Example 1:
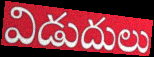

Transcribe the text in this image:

విడుదులు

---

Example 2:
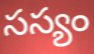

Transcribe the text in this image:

సస్యం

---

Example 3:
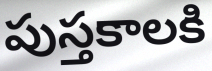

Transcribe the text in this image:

పుస్తకాలకి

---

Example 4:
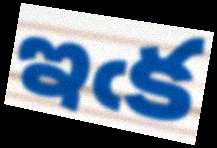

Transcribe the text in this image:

ఇఁక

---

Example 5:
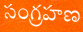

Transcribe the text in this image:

సంగ్రహణ